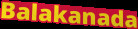
Balakanada